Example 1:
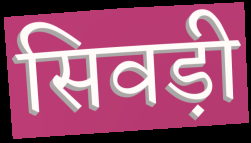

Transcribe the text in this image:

सिवड़ी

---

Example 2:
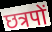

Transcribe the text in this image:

छत्रपों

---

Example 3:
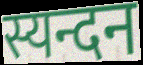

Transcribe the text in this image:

स्यन्दन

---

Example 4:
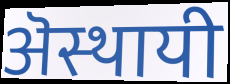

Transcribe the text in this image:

ऄस्थायी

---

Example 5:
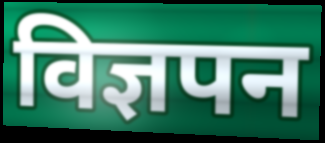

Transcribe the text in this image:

विज्ञपन